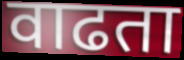
वाढता